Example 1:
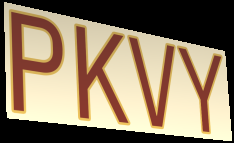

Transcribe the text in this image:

PKVY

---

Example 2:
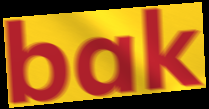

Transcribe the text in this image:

bak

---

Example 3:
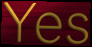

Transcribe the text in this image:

Yes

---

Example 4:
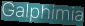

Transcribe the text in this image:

Galphimia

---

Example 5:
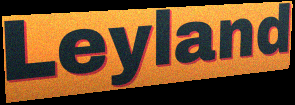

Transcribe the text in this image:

Leyland